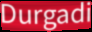
Durgadi